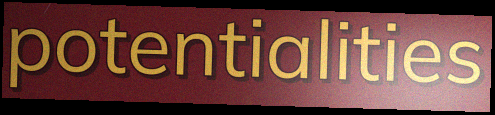
potentialities